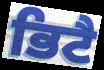
ਭਿਟੈ